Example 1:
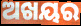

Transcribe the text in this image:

ଅଖୟର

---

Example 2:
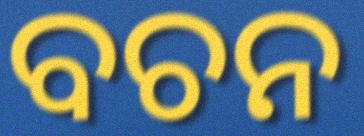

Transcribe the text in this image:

ବଚନ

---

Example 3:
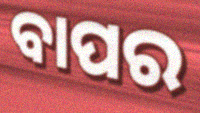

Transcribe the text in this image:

ବାପର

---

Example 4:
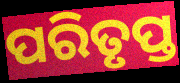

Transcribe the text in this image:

ପରିତୃପ୍ତ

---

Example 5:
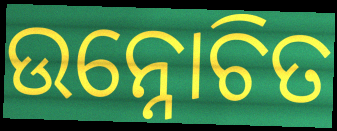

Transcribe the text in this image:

ଉନ୍ନୋଚିତ